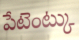
పేటెంట్కు